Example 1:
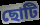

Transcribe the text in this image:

ছোটি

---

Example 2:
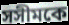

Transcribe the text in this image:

সসীমকে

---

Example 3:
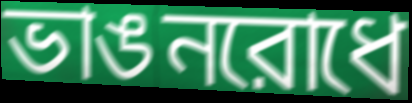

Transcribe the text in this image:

ভাঙনরোধে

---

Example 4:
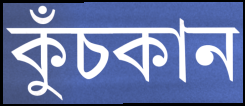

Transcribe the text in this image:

কুঁচকান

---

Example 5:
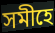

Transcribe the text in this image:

সমীহে